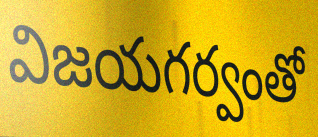
విజయగర్వంతో